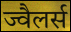
ज्वैलर्स